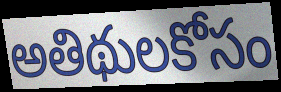
అతిథులకోసం